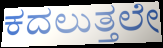
ಕದಲುತ್ತಲೇ